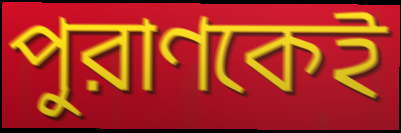
পুরাণকেই